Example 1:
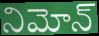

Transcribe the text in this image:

నిమోన్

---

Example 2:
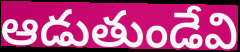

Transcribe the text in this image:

ఆడుతుండేవి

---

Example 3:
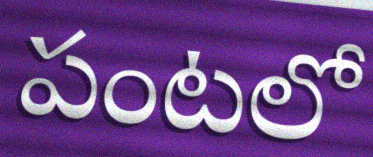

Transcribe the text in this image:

పంటలో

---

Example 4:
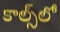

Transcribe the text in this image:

కాల్స్‌లో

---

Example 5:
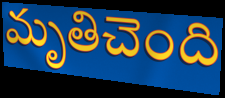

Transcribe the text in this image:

మృతిచెంది